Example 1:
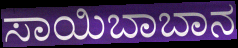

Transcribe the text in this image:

ಸಾಯಿಬಾಬಾನ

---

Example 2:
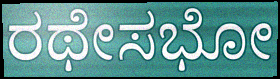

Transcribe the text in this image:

ರಥೇಸಭೋ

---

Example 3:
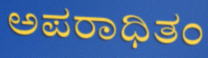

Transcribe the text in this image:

ಅಪರಾಧಿತಂ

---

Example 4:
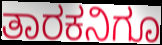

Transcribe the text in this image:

ತಾರಕನಿಗೂ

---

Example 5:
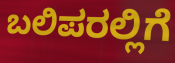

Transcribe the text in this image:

ಬಲಿಪರಲ್ಲಿಗೆ